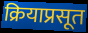
क्रियाप्रसूत